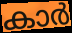
കാർ